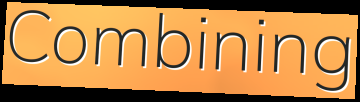
Combining